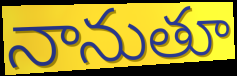
నానుతూ